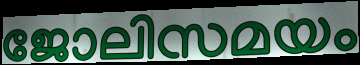
ജോലിസമയം